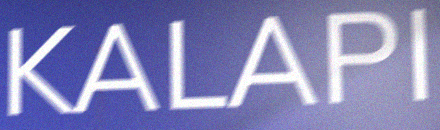
KALAPI